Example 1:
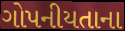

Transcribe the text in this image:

ગોપનીયતાના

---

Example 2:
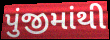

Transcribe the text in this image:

પુંજીમાંથી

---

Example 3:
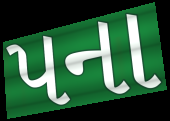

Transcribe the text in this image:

પના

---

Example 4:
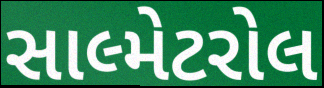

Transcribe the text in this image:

સાલ્મેટરોલ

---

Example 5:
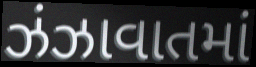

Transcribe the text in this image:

ઝંઝાવાતમાં